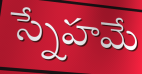
స్నేహమే